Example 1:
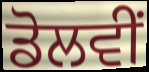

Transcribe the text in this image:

ਡੋਲਵੀਂ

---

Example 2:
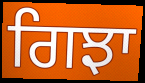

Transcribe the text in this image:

ਗਿਝਾ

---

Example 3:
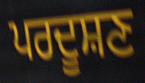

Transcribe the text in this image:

ਪਰਦੂਸ਼ਣ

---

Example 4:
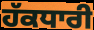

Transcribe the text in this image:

ਹੱਕਧਾਰੀ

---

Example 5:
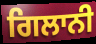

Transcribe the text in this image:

ਗਿਲਾਨੀ